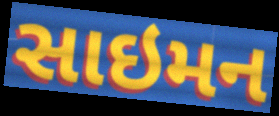
સાઇમન